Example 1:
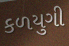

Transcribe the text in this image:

કળયુગી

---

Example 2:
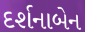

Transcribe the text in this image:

દર્શનાબેન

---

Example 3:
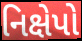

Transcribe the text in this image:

નિક્ષેપો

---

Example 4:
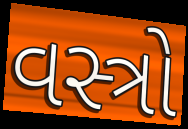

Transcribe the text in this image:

વસ્ત્રો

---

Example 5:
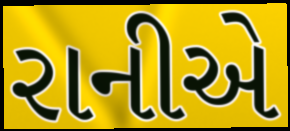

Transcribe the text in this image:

રાનીએ